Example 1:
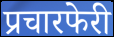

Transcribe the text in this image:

प्रचारफेरी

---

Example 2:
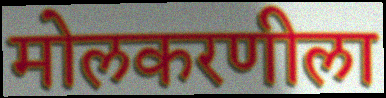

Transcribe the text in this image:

मोलकरणीला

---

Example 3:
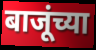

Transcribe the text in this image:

बाजूंच्या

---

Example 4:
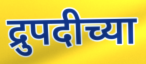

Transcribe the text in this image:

द्रुपदीच्या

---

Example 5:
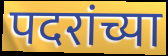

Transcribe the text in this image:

पदरांच्या